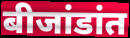
बीजांडांत